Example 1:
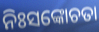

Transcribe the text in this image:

ନିଃସଙ୍କୋଚତା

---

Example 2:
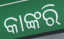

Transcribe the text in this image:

କାଙ୍କରି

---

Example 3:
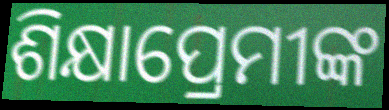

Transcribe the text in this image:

ଶିକ୍ଷାପ୍ରେମୀଙ୍କ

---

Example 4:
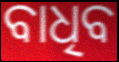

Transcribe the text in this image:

ବାଧିବ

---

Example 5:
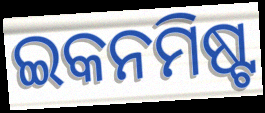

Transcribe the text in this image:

ଇକନମିଷ୍ଟ